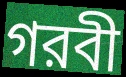
গরবী